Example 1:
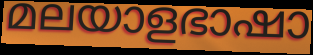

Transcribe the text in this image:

മലയാളഭാഷാ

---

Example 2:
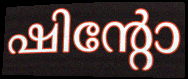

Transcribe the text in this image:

ഷിന്റോ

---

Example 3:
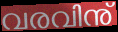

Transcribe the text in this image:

വരവിനു്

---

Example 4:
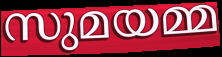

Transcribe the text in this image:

സുമയമ്മ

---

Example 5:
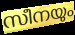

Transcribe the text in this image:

സീനയും